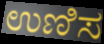
ಉಣಿಸ